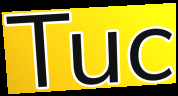
Tuc